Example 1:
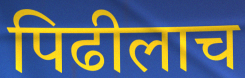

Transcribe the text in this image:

पिढीलाच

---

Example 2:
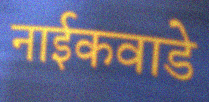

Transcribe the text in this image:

नाईकवाडे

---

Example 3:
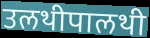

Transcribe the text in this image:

उलथीपालथी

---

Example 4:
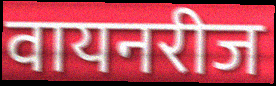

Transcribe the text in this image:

वायनरीज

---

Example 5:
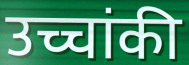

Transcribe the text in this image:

उच्चांकी